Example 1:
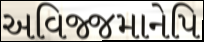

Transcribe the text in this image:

અવિજ્જમાનેપિ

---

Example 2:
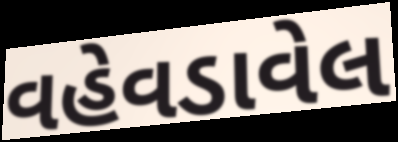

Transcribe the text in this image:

વહેવડાવેલ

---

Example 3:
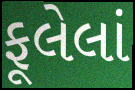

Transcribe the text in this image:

ફૂલેલાં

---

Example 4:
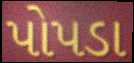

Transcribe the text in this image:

પોપડા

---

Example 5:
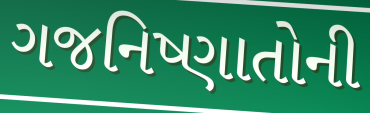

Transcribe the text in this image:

ગજનિષ્ણાતોની